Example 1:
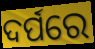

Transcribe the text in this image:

ଦର୍ପରେ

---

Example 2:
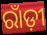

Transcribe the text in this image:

ରାଁଡ଼ୀ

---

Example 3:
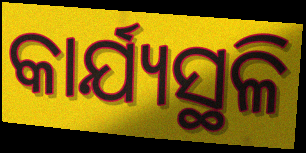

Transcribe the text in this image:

କାର୍ଯ୍ୟସ୍ଥଳି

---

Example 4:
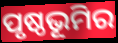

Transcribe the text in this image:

ପୃଷ୍ଠଭୂମିର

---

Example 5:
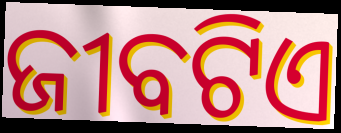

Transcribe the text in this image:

ଜୀବଟିଏ